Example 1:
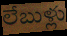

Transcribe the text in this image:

లేబుళ్లు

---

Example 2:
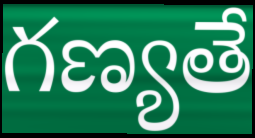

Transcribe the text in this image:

గణ్యతే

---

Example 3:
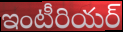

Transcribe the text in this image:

ఇంటీరియర్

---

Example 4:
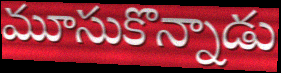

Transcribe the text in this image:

మూసుకొన్నాడు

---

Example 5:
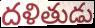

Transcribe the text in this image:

దళితుడు